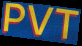
PVT